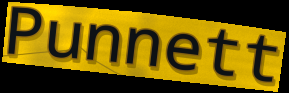
Punnett